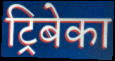
ट्रिबेका